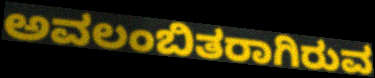
ಅವಲಂಬಿತರಾಗಿರುವ